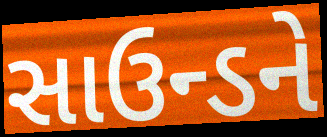
સાઉન્ડને